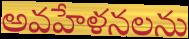
అవహేళనలను